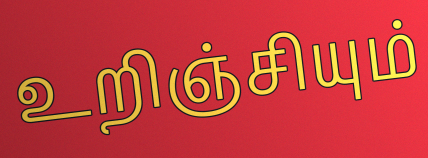
உறிஞ்சியும்